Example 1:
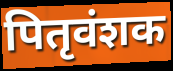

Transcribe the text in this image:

पितृवंशक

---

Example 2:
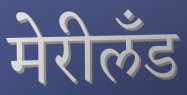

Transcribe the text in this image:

मेरीलँड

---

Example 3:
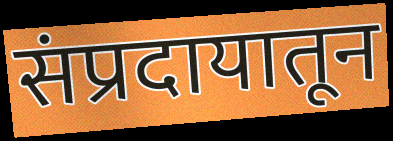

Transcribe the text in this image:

संप्रदायातून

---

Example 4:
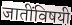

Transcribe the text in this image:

जातींविषयी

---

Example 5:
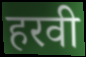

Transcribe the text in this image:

हरवी